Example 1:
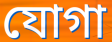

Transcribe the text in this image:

যোগা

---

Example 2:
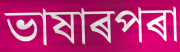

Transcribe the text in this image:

ভাষাৰপৰা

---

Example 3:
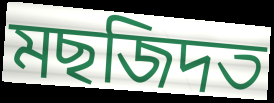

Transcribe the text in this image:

মছজিদত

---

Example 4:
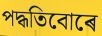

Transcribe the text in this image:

পদ্ধতিবোৰে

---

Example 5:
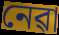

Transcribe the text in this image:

নেৱা